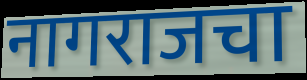
नागराजचा